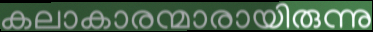
കലാകാരന്മാരായിരുന്നു